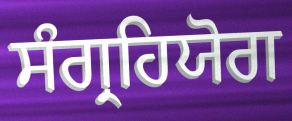
ਸੰਗ੍ਰਹਿਯੋਗ